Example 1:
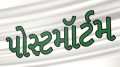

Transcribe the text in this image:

પોસ્ટમૉર્ટમ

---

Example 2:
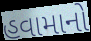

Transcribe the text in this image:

હવામાનો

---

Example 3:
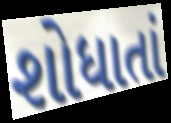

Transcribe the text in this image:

શોધાતાં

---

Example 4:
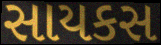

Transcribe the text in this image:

સાયકસ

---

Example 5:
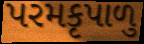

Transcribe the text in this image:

પરમકૃપાળુ